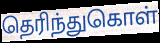
தெரிந்துகொள்